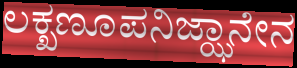
ಲಕ್ಖಣೂಪನಿಜ್ಝಾನೇನ